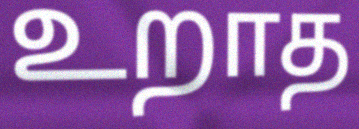
உறாத